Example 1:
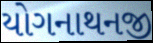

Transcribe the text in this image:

યોગનાથનજી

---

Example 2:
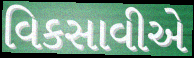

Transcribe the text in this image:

વિકસાવીએ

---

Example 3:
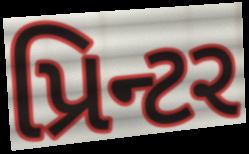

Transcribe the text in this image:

પ્રિન્ટર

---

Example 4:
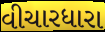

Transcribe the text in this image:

વીચારધારા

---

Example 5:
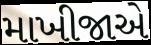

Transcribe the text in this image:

માખીજાએ